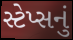
સ્ટેપ્સનું